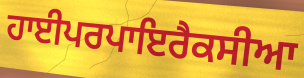
ਹਾਈਪਰਪਾਇਰੈਕਸੀਆ